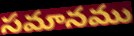
సమానము